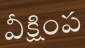
వీక్షింప